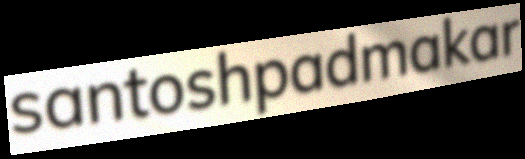
santoshpadmakar